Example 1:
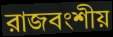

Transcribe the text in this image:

রাজবংশীয়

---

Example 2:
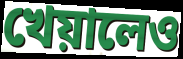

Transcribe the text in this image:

খেয়ালেও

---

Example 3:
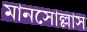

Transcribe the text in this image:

মানসোল্লাস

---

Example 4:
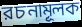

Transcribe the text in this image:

রচনামূলক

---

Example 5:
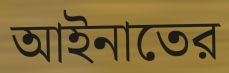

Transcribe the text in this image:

আইনাতের